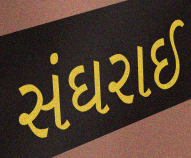
સંઘરાઈ